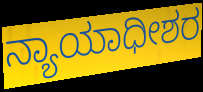
ನ್ಯಾಯಾಧೀಶರ